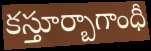
కస్తూర్బాగాంధీ